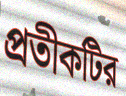
প্রতীকটির